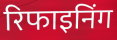
रिफाइनिंग